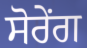
ਸੋਰੇਂਗ